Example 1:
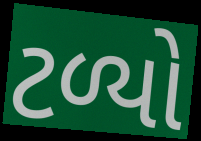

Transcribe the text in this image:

ટળ્યો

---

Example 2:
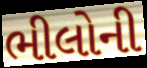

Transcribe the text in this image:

ભીલોની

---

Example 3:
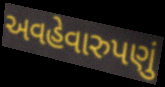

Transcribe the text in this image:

અવહેવારુપણું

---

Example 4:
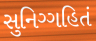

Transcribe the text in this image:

સુનિગ્ગહિતં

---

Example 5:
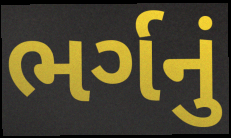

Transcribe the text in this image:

ભર્ગનું